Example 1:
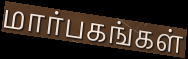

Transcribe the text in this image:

மார்பகங்கள்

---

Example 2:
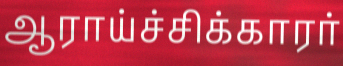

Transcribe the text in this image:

ஆராய்ச்சிக்காரர்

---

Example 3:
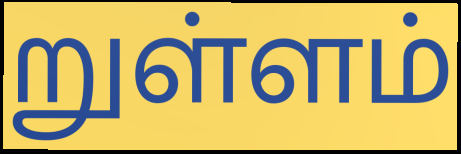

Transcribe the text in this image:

றுள்ளம்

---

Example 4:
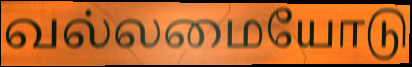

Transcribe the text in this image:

வல்லமையோடு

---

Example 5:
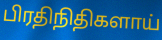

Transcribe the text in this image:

பிரதிநிதிகளாய்